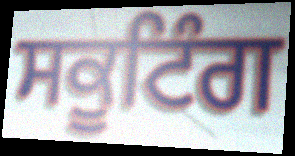
ਸਕੂਟਿੰਗ